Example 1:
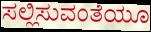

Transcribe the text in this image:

ಸಲ್ಲಿಸುವಂತೆಯೂ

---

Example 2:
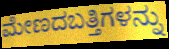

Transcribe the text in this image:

ಮೇಣದಬತ್ತಿಗಳನ್ನು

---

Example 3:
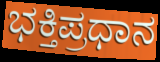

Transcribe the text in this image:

ಭಕ್ತಿಪ್ರಧಾನ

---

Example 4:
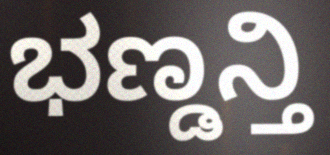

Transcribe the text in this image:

ಭಣ್ಡನ್ತಿ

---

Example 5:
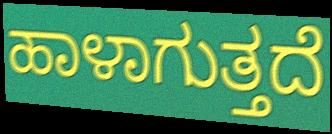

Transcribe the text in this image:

ಹಾಳಾಗುತ್ತದೆ